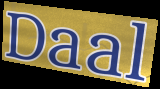
Daal